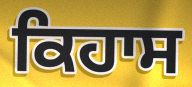
ਕਿਹਾਸ